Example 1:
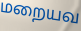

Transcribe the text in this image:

மறையவ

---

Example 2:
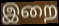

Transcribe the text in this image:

இறை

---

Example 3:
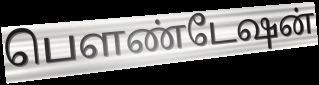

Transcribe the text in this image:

பௌண்டேஷன்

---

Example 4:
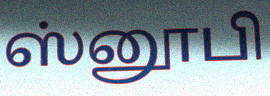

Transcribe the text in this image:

ஸ்னூபி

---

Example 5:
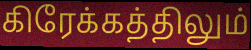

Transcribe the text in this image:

கிரேக்கத்திலும்